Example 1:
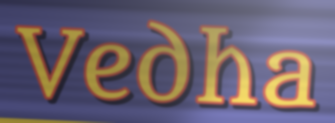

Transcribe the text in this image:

Vedha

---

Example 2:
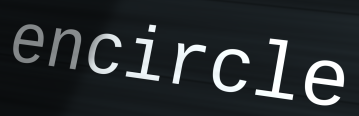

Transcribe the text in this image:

encircle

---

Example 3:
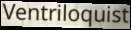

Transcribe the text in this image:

Ventriloquist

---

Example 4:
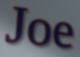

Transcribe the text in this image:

Joe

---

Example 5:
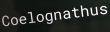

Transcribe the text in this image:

Coelognathus